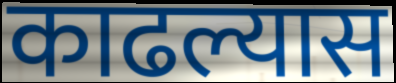
काढल्यास